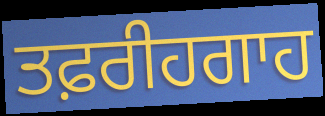
ਤਫ਼ਰੀਹਗਾਹ